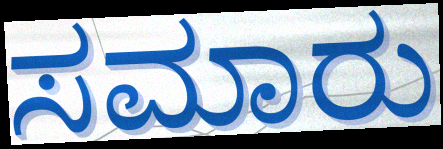
ಸಮಾರು